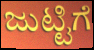
ಜುಟ್ಟಿಗೆ